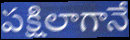
పక్షిలాగానే